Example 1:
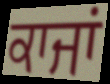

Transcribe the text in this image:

ਕਾਜਾਂ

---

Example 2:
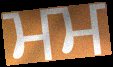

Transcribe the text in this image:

ਮਮ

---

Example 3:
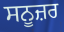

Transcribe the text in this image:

ਸਨੂਜ਼ਰ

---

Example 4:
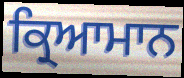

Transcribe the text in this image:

ਕ੍ਰਿਆਮਾਨ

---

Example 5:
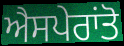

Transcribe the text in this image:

ਐਸਪੇਰਾਂਤੋ